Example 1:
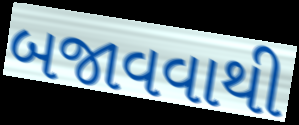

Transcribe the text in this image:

બજાવવાથી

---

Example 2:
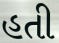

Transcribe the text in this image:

હતી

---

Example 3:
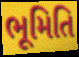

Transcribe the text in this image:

ભૂમિતિ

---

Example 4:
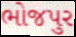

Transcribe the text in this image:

ભોજપુર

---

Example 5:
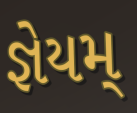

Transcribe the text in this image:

જ્ઞેયમ્